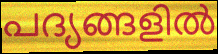
പദ്യങ്ങളിൽ